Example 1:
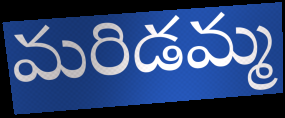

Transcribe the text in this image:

మరిడమ్మ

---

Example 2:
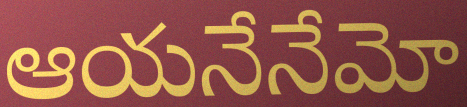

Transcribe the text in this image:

ఆయనేనేమో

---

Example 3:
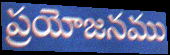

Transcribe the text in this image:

ప్రయోజనము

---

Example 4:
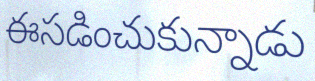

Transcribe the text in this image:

ఈసడించుకున్నాడు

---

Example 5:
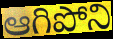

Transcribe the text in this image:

ఆగిపోని